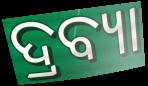
ଦ୍ରବ୍ୟା